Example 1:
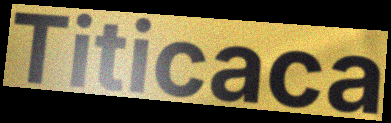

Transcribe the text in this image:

Titicaca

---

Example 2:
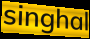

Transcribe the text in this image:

singhal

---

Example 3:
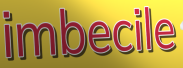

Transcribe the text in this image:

imbecile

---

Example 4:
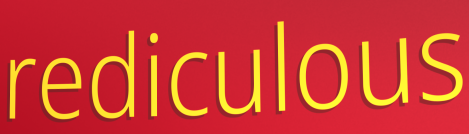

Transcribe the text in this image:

rediculous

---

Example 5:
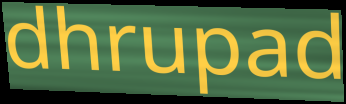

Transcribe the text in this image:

dhrupad